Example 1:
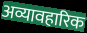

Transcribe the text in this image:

अव्यावहारिक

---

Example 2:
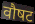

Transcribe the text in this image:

वौषट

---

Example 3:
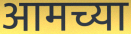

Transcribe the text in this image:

आमच्या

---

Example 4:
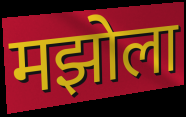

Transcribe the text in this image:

मझोला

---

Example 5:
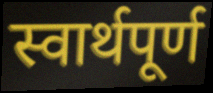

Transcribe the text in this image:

स्वार्थपूर्ण